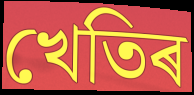
খেতিৰ